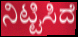
ನಿಟ್ಟಿಸಿದೆ